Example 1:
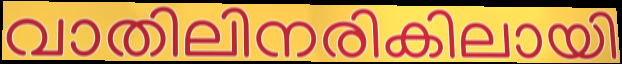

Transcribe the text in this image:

വാതിലിനരികിലായി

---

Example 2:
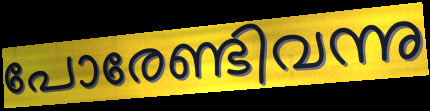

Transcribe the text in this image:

പോരേണ്ടിവന്നു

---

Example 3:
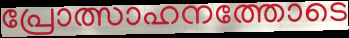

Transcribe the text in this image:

പ്രോത്സാഹനത്തോടെ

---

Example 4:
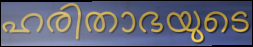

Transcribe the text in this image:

ഹരിതാഭയുടെ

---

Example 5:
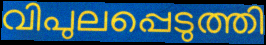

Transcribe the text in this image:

വിപുലപ്പെടുത്തി